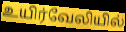
உயிர்வேலியில்